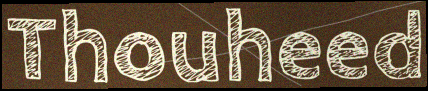
Thouheed